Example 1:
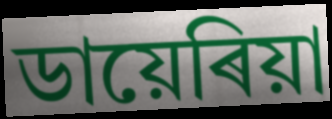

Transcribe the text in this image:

ডায়েৰিয়া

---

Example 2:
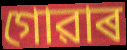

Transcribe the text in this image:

গোৱাৰ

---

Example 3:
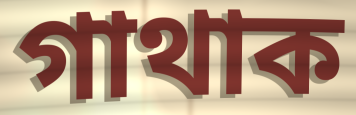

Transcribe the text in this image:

গাথাক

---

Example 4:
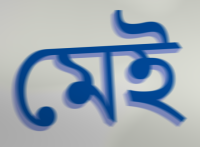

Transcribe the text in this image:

মেই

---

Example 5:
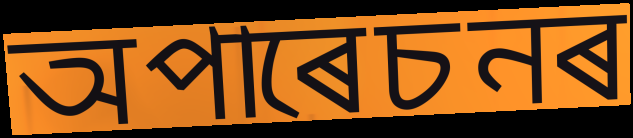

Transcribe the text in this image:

অপাৰেচনৰ